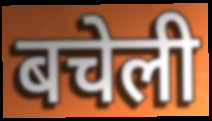
बचेली